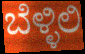
ಬೆಳ್ಳಿಲಿ